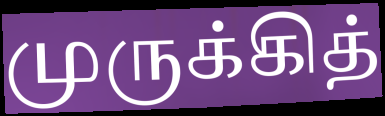
முருக்கித்